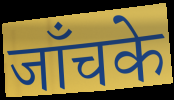
जाँचके